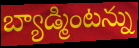
బ్యాడ్మింటన్ను